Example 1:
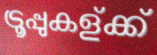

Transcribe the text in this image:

ട്രൂപ്പുകള്ക്ക്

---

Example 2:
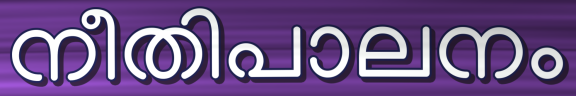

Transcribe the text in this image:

നീതിപാലനം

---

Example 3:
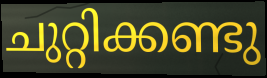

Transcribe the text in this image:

ചുറ്റിക്കണ്ടു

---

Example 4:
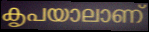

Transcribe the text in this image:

കൃപയാലാണ്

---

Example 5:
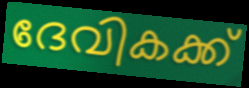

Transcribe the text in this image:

ദേവികക്ക്